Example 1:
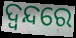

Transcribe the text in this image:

ଦ୍ଵନ୍ଦରେ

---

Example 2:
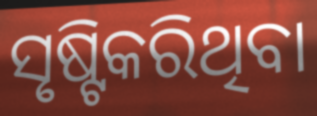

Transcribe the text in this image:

ସୃଷ୍ଟିକରିଥିବା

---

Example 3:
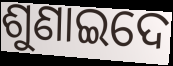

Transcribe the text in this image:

ଶୁଣାଇଦେ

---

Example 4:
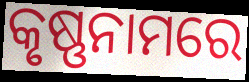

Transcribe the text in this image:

କୃଷ୍ଣନାମରେ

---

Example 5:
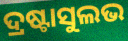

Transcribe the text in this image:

ଦ୍ରଷ୍ଟାସୁଲଭ